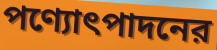
পণ্যোৎপাদনের